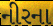
નીરના